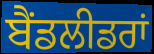
ਬੈਂਡਲੀਡਰਾਂ